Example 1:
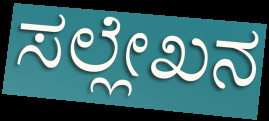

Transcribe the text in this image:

ಸಲ್ಲೇಖನ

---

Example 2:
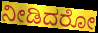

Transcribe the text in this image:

ನೀಡಿದರೋ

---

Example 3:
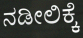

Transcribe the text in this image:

ನಡೀಲಿಕ್ಕೆ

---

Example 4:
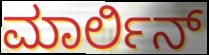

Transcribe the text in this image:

ಮಾರ್ಲಿನ್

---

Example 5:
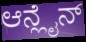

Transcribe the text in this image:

ಆನ್ಲೈನ್